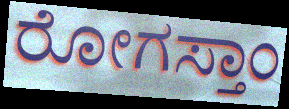
ರೋಗಸ್ತಾಂ